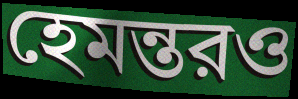
হেমন্তরও